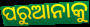
ପରୁଆନାକୁ